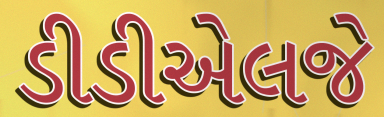
ડીડીએલજે